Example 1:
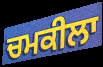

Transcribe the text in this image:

ਚਮਕੀਲਾ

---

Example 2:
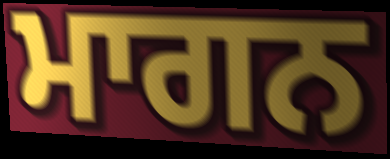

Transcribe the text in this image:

ਮਾਗਨ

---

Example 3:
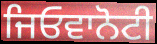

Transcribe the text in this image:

ਜਿਓਵਾਨੋਟੀ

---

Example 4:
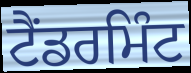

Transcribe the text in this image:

ਟੈਂਡਰਮਿੰਟ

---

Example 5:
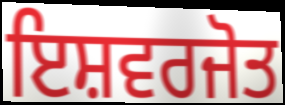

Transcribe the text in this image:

ਇਸ਼ਵਰਜੋਤ